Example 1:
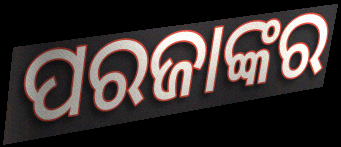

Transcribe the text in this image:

ପରଜାଙ୍କର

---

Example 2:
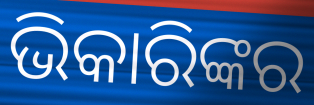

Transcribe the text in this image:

ଭିକାରିଙ୍କର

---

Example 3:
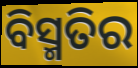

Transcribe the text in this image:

ବିସ୍ମତିର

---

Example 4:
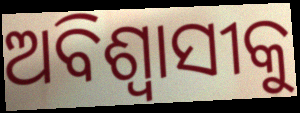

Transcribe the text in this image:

ଅବିଶ୍ୱାସୀକୁ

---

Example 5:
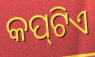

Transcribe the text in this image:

କପ୍‍ଟିଏ